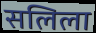
सलिला